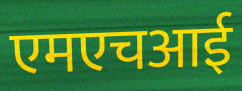
एमएचआई